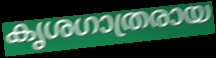
കൃശഗാത്രരായ